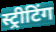
स्ट्रीटिंग